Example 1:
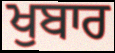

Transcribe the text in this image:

ਖੁਬਾਰ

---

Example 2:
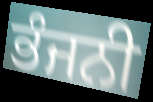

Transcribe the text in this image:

ਭੰਜਨੀ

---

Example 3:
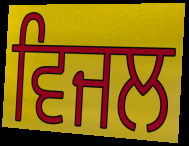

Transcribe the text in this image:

ਵਿਜਲ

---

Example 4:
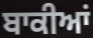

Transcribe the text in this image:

ਬਾਕੀਆਂ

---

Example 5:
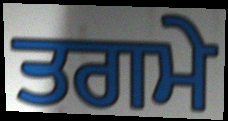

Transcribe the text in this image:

ਤਗਮੇ